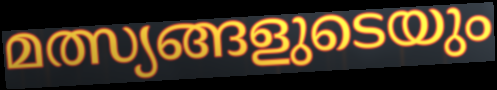
മത്സ്യങ്ങളുടെയും